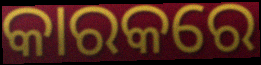
କାରକରେ